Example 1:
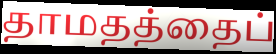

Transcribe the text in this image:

தாமதத்தைப்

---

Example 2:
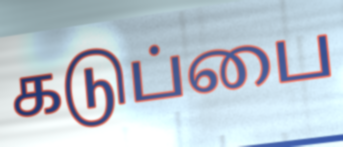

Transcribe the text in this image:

கடுப்பை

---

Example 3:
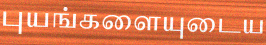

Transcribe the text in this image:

புயங்களையுடைய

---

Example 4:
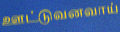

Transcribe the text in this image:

ஊட்டுவனவாய்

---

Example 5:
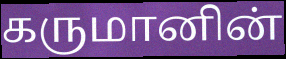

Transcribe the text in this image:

கருமானின்